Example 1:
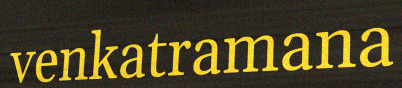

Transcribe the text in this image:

venkatramana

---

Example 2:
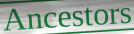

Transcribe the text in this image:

Ancestors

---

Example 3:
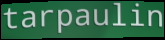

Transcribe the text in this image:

tarpaulin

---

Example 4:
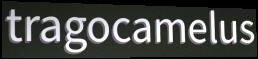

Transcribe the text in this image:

tragocamelus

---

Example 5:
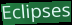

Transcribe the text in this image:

Eclipses